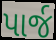
પાર્જ